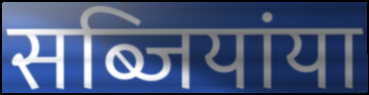
सब्जियांया